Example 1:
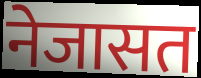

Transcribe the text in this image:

नेजासत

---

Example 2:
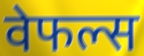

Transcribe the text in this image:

वेफल्स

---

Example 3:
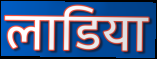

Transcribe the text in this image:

लाडिया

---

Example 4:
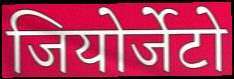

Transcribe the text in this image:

जियोर्जेटो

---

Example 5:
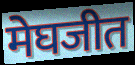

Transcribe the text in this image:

मेघजीत